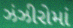
ઝંઝીરોમાં